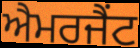
ਐਮਰਜੈਂਟ